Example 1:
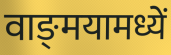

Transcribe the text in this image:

वाङ्‌मयामध्यें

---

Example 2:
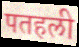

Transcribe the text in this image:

पतहली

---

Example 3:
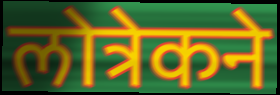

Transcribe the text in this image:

लोत्रेकने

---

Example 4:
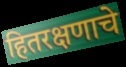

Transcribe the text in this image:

हितरक्षणाचे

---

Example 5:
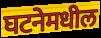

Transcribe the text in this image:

घटनेमधील